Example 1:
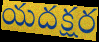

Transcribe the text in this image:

యదక్షర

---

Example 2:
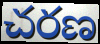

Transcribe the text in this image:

చరణ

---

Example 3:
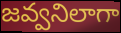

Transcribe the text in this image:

జవ్వనిలాగా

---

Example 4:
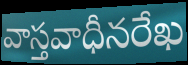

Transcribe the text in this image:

వాస్తవాధీనరేఖ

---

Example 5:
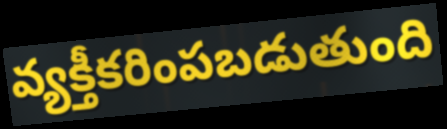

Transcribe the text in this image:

వ్యక్తీకరింపబడుతుంది